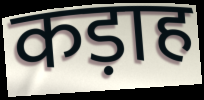
कड़ाह